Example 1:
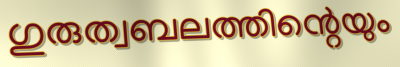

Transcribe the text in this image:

ഗുരുത്വബലത്തിന്റെയും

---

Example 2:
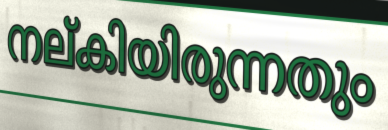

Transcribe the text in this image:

നല്കിയിരുന്നതും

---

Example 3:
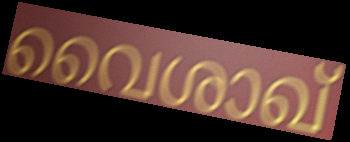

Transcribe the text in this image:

വൈശാഖ്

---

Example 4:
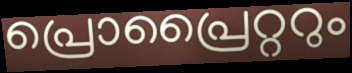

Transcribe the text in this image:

പ്രൊപ്രൈറ്ററും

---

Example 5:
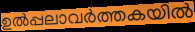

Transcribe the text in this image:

ഉൽപ്പലാവർത്തകയിൽ